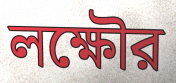
লক্ষৌর